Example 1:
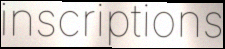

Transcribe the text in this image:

inscriptions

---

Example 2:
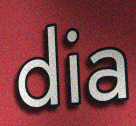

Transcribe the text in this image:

dia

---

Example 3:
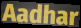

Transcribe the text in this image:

Aadhar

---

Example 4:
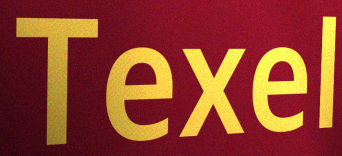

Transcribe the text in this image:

Texel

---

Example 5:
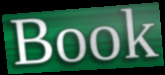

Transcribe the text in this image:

Book